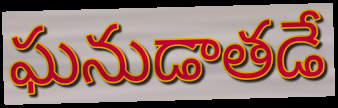
ఘనుడాతడే